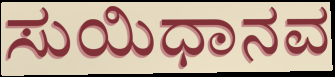
ಸುಯಿಧಾನವ